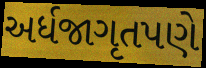
અર્ધજાગૃતપણે